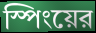
স্পিংয়ের